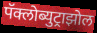
पॅक्लोब्युट्राझोल